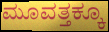
ಮೂವತ್ತಕ್ಕೂ